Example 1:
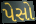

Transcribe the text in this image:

પેસો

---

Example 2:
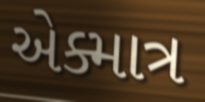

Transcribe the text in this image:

એક્માત્ર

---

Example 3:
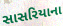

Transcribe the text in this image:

સાસરિયાના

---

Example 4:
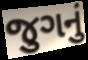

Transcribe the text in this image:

જુગનું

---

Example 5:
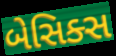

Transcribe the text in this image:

બેસિક્સ